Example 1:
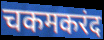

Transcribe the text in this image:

चकमकरंद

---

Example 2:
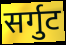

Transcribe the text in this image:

सर्गुट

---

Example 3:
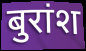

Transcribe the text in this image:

बुरांश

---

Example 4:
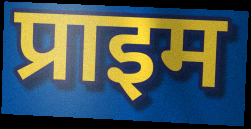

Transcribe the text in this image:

प्राइम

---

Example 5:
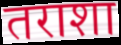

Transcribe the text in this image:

तराशा